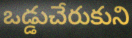
ఒడ్డుచేరుకుని